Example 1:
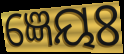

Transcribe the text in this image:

ଜ୍ଞେୟଃ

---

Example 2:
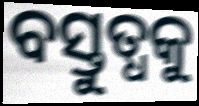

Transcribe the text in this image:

ବସ୍ତୁତ୍ଧକୁ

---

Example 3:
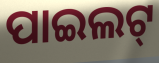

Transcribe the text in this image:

ପାଇଲଟ୍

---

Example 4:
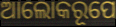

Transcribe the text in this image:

ଆଲୋକରୂପେ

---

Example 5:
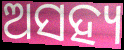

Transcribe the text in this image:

ଅସହ୍ଯ